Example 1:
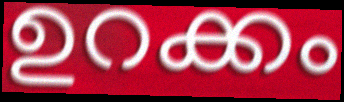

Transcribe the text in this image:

ഉറക്കം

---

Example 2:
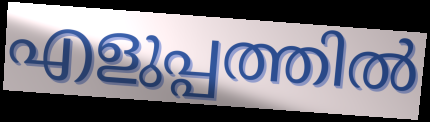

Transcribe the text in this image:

എളുപ്പത്തിൽ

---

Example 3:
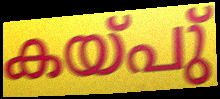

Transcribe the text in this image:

കയ്പു്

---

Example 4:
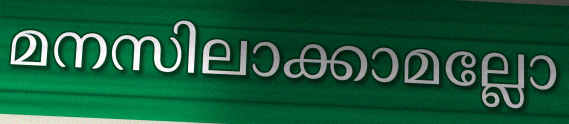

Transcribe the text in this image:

മനസിലാക്കാമല്ലോ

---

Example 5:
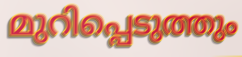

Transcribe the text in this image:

മുറിപ്പെടുത്തും